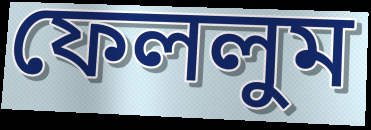
ফেললুম